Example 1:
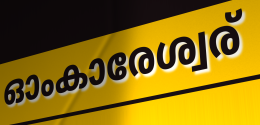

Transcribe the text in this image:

ഓംകാരേശ്വര്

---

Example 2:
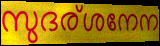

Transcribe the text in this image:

സുദര്ശനേന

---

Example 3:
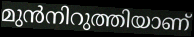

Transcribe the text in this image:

മുൻനിറുത്തിയാണ്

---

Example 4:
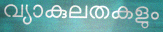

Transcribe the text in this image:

വ്യാകുലതകളും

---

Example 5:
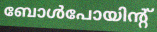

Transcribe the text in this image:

ബോൾപോയിന്റ്